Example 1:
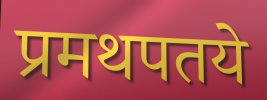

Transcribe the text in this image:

प्रमथपतये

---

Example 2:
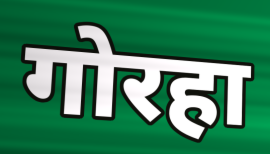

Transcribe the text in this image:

गोरहा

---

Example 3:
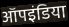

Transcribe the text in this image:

ऑपइंडिया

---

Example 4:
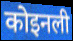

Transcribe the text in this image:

कोइनली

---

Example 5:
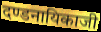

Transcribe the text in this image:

दण्डनायिकाजी